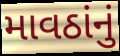
માવઠાંનું